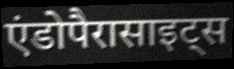
एंडोपैरासाइट्स